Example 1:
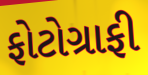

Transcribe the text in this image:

ફોટોગ્રાફી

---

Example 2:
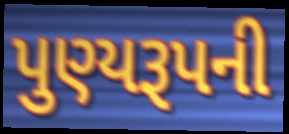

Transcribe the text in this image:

પુણ્યરૂપની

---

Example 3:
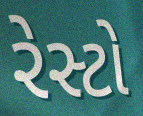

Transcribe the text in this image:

રેસ્ટો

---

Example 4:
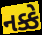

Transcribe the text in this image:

નક્કે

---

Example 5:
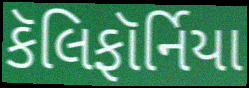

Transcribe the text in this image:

કૅલિફૉર્નિયા